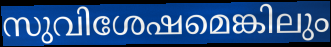
സുവിശേഷമെങ്കിലും